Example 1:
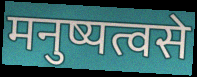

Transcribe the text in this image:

मनुष्यत्वसे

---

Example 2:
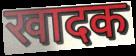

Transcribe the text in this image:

खादक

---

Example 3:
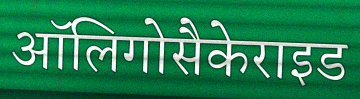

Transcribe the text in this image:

ऑलिगोसैकेराइड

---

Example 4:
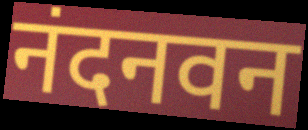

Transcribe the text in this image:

नंदनवन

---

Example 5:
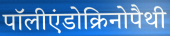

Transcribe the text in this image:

पॉलीएंडोक्रिनोपैथी